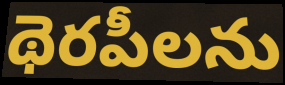
థెరపీలను